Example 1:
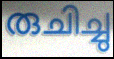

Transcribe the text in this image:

രുചിച്ചു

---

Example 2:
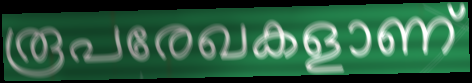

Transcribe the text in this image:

രൂപരേഖകളാണ്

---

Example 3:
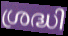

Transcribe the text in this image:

ശ്രദ്ധി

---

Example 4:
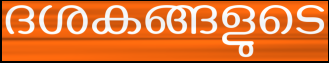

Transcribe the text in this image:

ദശകങ്ങളുടെ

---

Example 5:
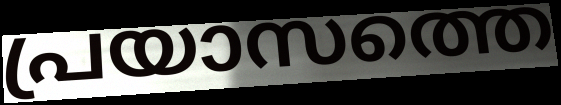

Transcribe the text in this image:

പ്രയാസത്തെ